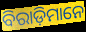
ବିରାଡ଼ିମାନେ